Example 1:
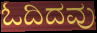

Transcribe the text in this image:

ಓದಿದವು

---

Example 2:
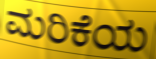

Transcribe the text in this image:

ಮರಿಕೆಯ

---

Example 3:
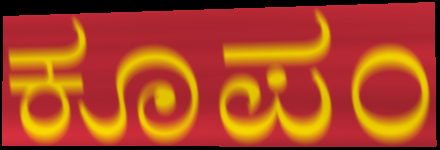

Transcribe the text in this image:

ಕೂಪಂ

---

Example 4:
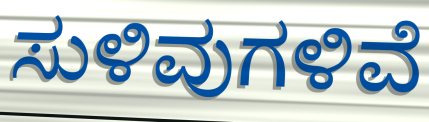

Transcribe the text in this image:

ಸುಳಿವುಗಳಿವೆ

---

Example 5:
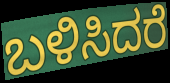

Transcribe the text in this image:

ಬಳಿಸಿದರೆ